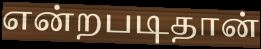
என்றபடிதான்